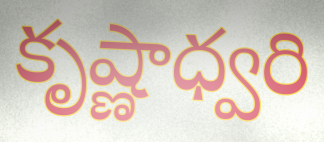
కృష్ణాధ్వరి